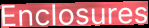
Enclosures